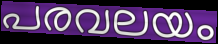
പരവലയം